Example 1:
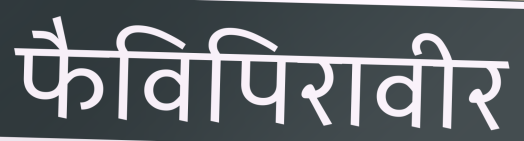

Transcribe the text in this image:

फैविपिरावीर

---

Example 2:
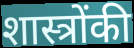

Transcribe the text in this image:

शास्त्रोंकी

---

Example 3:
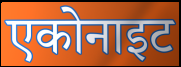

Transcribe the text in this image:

एकोनाइट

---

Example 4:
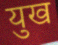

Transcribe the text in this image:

युख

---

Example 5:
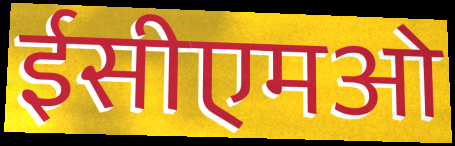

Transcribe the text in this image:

ईसीएमओ